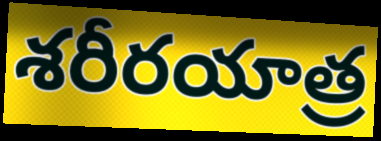
శరీరయాత్ర